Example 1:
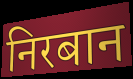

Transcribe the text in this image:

निरबान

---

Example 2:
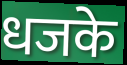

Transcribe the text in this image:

धजके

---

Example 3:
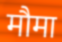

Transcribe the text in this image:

मौमा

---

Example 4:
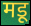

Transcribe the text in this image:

मडू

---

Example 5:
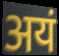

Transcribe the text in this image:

अयं